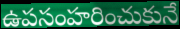
ఉపసంహరించుకునే